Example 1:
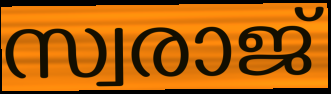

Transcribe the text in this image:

സ്വരാജ്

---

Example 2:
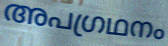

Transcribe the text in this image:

അപഗ്രഥനം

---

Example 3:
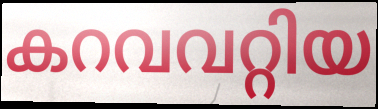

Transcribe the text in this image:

കറവവറ്റിയ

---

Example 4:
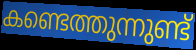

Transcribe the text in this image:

കണ്ടെത്തുന്നുണ്ട്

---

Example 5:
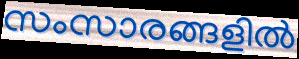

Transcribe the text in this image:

സംസാരങ്ങളിൽ